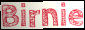
Birnie